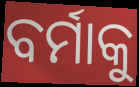
ବର୍ମାକୁ